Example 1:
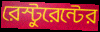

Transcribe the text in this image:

রেস্টুরেন্টের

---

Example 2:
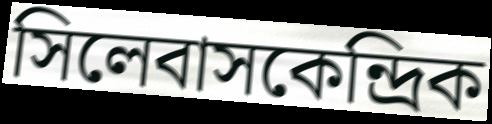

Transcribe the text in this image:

সিলেবাসকেন্দ্রিক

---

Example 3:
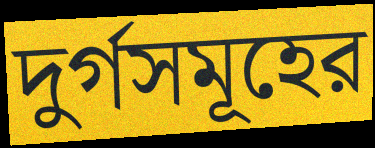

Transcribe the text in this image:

দুর্গসমূহের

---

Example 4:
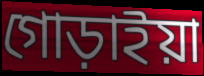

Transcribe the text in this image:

গোড়াইয়া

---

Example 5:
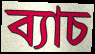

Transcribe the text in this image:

ব্যাচ